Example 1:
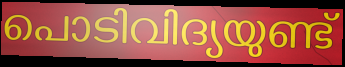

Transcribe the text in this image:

പൊടിവിദ്യയുണ്ട്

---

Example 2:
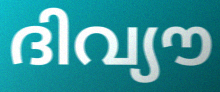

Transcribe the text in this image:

ദിവ്യൗ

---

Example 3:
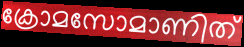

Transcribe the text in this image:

ക്രോമസോമാണിത്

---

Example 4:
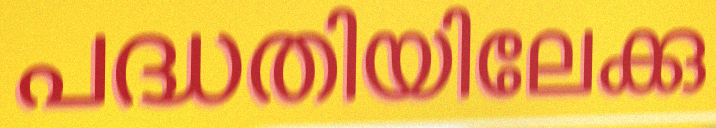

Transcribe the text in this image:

പദ്ധതിയിലേക്കു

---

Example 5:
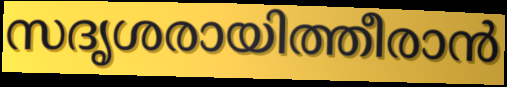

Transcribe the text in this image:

സദൃശരായിത്തീരാൻ